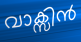
വാക്സിൻ